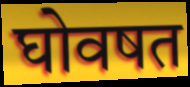
घोवषत